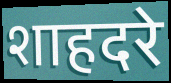
शाहदरे